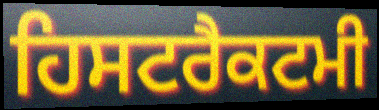
ਹਿਸਟਰੈਕਟਮੀ